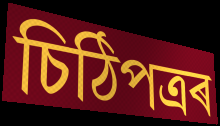
চিঠিপত্ৰৰ